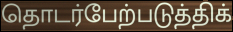
தொடர்பேற்படுத்திக்